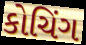
કોચિંગ